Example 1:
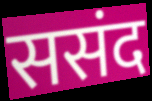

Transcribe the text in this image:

ससंद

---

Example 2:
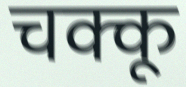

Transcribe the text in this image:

चक्कू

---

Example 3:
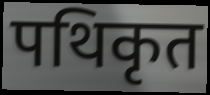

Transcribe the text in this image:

पथिकृत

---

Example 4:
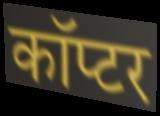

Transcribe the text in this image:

कॉप्टर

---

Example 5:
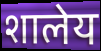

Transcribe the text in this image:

शालेय